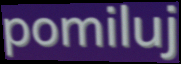
pomiluj